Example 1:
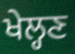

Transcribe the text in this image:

ਖੇਲ੍ਹਣ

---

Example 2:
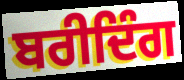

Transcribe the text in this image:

ਬਰੀਦਿੰਗ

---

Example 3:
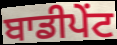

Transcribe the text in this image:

ਬਾਡੀਪੇਂਟ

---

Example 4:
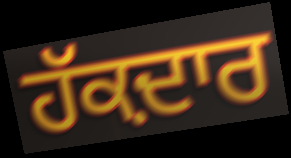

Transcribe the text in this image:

ਹੱਕ਼ਦਾਰ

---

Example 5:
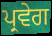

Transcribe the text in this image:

ਪ੍ਰਵੇਗ